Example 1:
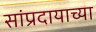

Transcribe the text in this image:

सांप्रदायाच्या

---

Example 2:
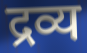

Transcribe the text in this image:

द्रव्य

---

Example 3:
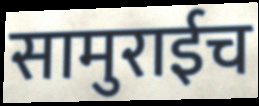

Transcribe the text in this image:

सामुराईच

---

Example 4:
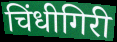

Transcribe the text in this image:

चिंधीगिरी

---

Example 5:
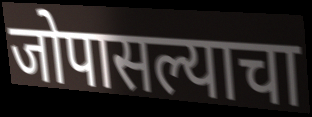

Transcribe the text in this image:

जोपासल्याचा